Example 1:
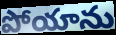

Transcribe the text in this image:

పోయాను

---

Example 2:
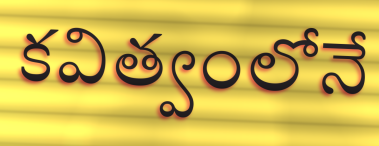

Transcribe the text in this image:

కవిత్వంలోనే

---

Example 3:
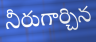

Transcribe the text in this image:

నీరుగార్చిన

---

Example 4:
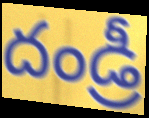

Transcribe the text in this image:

దండ్రీ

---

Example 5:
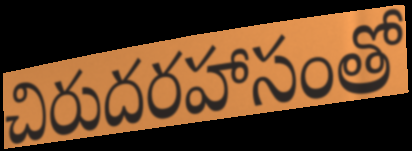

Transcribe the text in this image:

చిరుదరహాసంతో